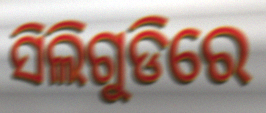
ସିଲିଗୁଡିରେ